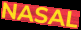
NASAL